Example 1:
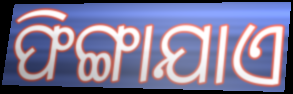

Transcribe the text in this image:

ଫିଙ୍ଗାଯାଏ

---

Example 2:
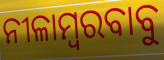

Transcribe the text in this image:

ନୀଳାମ୍ବରବାବୁ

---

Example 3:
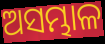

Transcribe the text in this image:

ଅସମ୍ଭାଳ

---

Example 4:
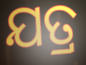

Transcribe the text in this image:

ଯତ୍ର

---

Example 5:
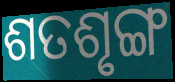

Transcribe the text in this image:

ଶତଶୃଙ୍ଗ